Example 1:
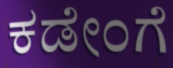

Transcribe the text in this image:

ಕಡೇಂಗೆ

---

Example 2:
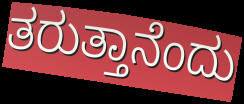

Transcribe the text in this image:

ತರುತ್ತಾನೆಂದು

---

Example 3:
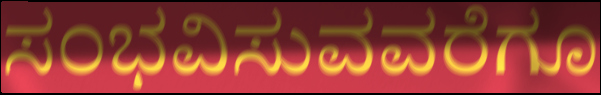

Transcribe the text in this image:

ಸಂಭವಿಸುವವರೆಗೂ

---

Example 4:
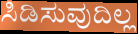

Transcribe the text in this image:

ಸಿಡಿಸುವುದಿಲ್ಲ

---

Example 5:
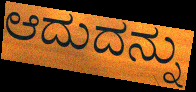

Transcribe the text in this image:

ಆದುದನ್ನು